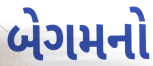
બેગમનો